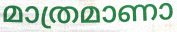
മാത്രമാണാ